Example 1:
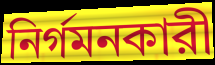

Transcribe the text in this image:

নির্গমনকারী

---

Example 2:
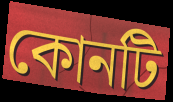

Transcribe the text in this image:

কোনটি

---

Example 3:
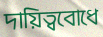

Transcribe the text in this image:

দায়িত্ববোধে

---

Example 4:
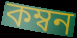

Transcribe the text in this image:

কম্বন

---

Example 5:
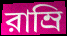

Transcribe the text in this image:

রাম্রি